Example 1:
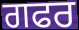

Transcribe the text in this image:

ਗਫਰ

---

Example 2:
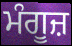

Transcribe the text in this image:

ਮੰਗੂਜ਼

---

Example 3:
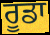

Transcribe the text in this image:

ਰੂਡਾ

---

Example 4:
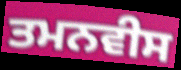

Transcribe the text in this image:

ਤਮਨਵੀਸ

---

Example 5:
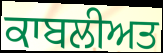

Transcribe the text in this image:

ਕਾਬਲੀਅਤ